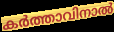
കർത്താവിനാൽ